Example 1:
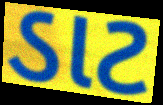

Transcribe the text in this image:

ડાટ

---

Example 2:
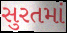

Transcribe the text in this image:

સુરતમાં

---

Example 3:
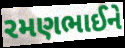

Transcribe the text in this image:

રમણભાઈને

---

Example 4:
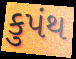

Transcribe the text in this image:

કુપંથ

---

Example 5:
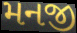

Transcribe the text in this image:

મનજી